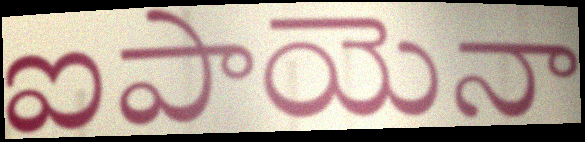
ఐపాయెనా